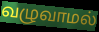
வழுவாமல்